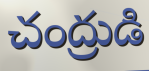
చంద్రుడి